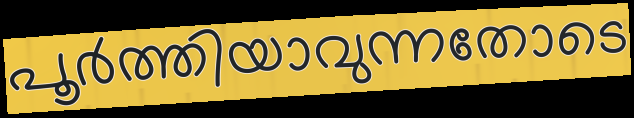
പൂർത്തിയാവുന്നതോടെ